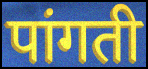
पांगती